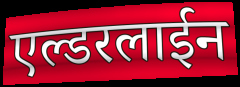
एल्डरलाईन